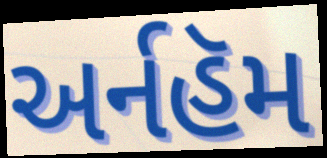
અર્નહૅમ